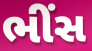
ભીંસ